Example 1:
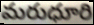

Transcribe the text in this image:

మరుధూరి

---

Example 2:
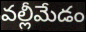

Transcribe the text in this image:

వల్లీమేడం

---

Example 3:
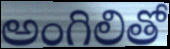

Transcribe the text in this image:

అంగిలితో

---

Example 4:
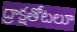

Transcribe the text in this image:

ద్రాక్షతోటలూ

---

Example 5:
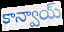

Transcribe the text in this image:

కాన్వాయ్